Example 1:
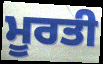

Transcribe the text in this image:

ਮੂਰਤੀ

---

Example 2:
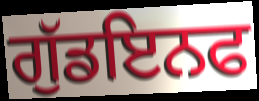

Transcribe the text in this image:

ਗੁੱਡਇਨਫ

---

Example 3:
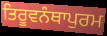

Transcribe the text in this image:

ਤਿਰੂਵਨੰਥਾਪੁਰਮ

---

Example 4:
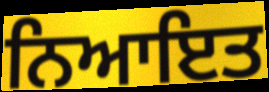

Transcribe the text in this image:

ਨਿਆਇਤ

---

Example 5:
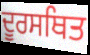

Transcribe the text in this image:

ਦੂਰਸਥਿਤ